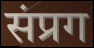
संप्रग